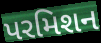
પરમિશન